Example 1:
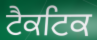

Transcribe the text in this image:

ਟੈਕਟਿਕ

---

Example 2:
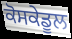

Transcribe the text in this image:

ਕੋਸਕੇਡੂਲ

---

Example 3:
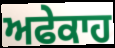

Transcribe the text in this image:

ਅਫੇਕਾਹ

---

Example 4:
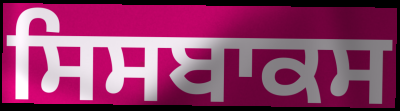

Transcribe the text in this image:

ਸਿਸਬਾਕਸ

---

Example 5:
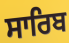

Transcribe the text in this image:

ਸਾਰਿਬ